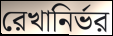
রেখানির্ভর